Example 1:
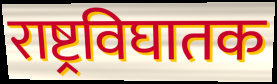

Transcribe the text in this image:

राष्ट्रविघातक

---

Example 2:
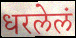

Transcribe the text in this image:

धरलेलं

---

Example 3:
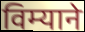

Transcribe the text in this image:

विम्याने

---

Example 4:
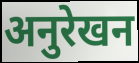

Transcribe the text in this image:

अनुरेखन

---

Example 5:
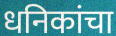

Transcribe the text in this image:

धनिकांचा